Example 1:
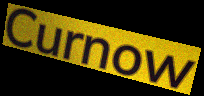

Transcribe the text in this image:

Curnow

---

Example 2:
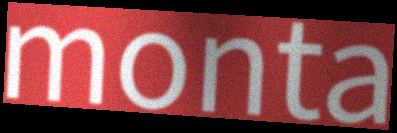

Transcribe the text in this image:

monta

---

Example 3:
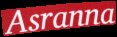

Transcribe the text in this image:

Asranna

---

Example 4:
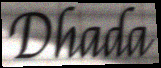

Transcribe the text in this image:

Dhada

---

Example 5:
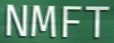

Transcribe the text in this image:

NMFT